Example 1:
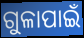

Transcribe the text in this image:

ଗୁଳାପାଇଁ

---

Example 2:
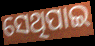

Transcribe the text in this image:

ସେଥିପାଇ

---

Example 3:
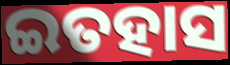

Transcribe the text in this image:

ଇତହାସ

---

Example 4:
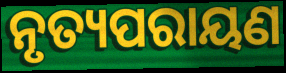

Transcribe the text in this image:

ନୃତ୍ୟପରାୟଣ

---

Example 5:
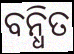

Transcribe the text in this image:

ବନ୍ଧିତ